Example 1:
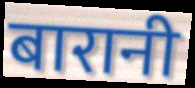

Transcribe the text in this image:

बारानी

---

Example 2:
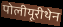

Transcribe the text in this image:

पोलीयूरीथेन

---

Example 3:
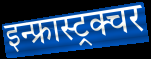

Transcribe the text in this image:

इन्फ्रास्ट्रक्चर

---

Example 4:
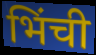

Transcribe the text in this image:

भिंची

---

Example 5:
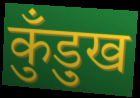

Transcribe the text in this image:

कुँड़ुख